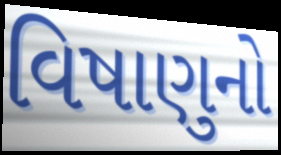
વિષાણુનો